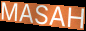
MASAH